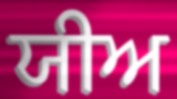
ਯੀਅ